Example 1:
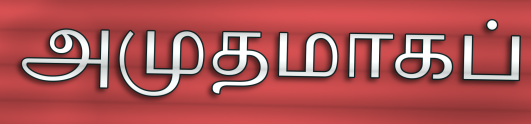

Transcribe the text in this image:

அமுதமாகப்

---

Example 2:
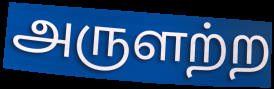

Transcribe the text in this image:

அருளற்ற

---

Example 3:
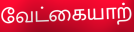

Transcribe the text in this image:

வேட்கையாற்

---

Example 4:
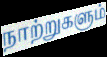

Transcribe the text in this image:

நாற்றுகளும்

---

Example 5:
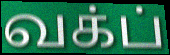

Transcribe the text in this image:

வக்ப்